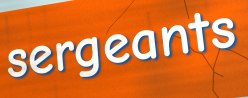
sergeants